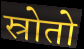
स्रोतो